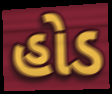
હોડ